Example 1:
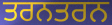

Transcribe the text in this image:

ਤਰਨਤਰਨ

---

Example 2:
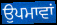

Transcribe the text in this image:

ਉਪਮਾਵਾਂ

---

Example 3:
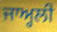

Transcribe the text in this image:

ਜਾਅ੍ਹਲੀ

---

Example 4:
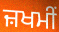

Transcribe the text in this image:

ਜ਼ਖਮੀਂ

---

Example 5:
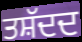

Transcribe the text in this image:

ਤਸ਼ੱਦਦ